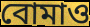
বোমাও